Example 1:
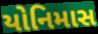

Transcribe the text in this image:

યોનિમાસ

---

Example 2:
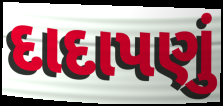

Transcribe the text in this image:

દાદાપણું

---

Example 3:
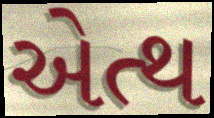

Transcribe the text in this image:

એત્થ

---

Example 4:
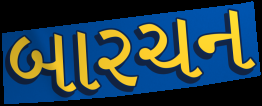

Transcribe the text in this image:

બારચન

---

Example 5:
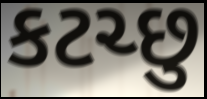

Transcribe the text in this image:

કટચ્છુ